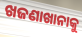
ଖଜଣାଖାନାକୁ